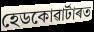
হেডকোৱাৰ্টাৰত